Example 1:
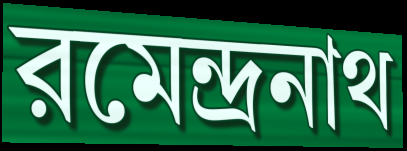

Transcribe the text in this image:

রমেন্দ্রনাথ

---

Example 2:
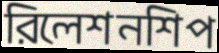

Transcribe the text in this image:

রিলেশনশিপ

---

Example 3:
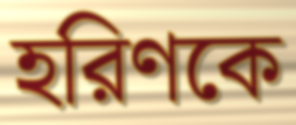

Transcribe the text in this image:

হরিণকে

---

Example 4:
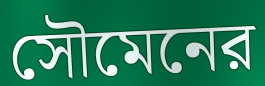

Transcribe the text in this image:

সৌমেনের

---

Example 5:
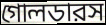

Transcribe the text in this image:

গোলডারস